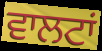
ਵਾਲਟਾਂ